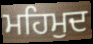
ਮਹਿਮੁਦ